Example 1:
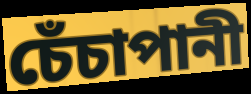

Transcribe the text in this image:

চেঁচাপানী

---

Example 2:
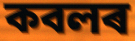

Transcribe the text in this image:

কবলৰ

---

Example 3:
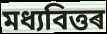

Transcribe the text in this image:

মধ্যবিত্তৰ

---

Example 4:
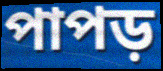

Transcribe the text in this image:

পাপড়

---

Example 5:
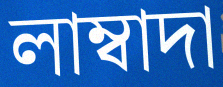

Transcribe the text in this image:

লাম্বাদা